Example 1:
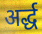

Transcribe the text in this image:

अर्द्ध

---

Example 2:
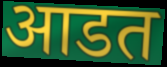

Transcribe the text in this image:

आडत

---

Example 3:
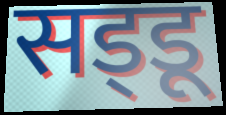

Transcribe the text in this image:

सड्‌डू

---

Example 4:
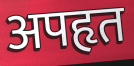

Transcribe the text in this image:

अपहृत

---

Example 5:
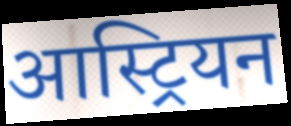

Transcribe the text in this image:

आस्ट्रियन